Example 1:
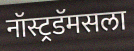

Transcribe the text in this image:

नॉस्ट्रडॅमसला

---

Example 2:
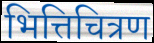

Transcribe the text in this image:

भित्तिचित्रण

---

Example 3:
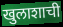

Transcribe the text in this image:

खुलाशाची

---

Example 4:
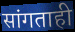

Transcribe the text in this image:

सांगताही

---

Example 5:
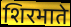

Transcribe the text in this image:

शिरभाते